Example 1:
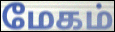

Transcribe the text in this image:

மேகம்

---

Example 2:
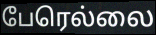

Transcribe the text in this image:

பேரெல்லை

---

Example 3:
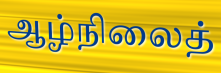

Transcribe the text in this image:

ஆழ்நிலைத்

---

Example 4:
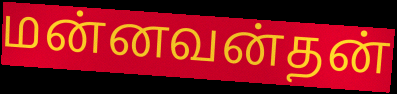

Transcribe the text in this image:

மன்னவன்தன்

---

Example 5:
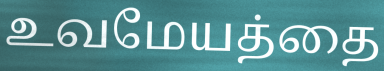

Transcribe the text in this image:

உவமேயத்தை